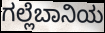
ಗಲ್ಲೆಬಾನಿಯ